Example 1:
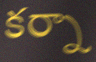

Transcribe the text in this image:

కర్నా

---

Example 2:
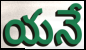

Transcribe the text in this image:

యనే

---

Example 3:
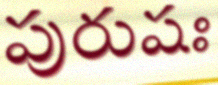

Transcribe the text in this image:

పురుషః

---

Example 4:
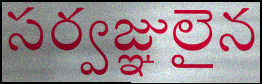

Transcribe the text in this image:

సర్వజ్ఞులైన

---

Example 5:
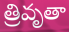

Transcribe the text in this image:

త్రివృతా